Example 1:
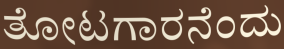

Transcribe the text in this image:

ತೋಟಗಾರನೆಂದು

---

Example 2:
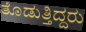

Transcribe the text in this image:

ತೊಡುತ್ತಿದ್ದರು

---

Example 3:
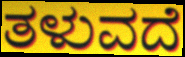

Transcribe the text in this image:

ತಳುವದೆ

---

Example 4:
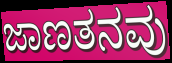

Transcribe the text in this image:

ಜಾಣತನವು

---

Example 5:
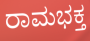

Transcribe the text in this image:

ರಾಮಭಕ್ತ